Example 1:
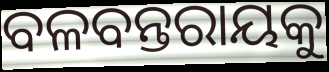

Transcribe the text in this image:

ବଳବନ୍ତରାୟକୁ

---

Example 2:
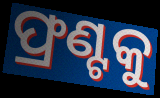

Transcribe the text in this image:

ଫ୍ରଣ୍ଟକୁ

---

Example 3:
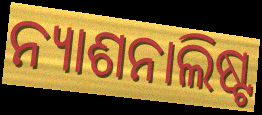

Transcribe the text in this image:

ନ୍ୟାଶନାଲିଷ୍ଟ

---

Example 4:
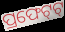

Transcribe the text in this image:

ପ୍ରଫେଟ୍‌ଟ୍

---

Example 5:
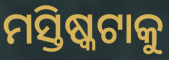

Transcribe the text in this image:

ମସ୍ତିଷ୍କଟାକୁ